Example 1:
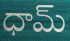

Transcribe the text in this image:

ధామ్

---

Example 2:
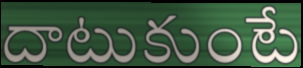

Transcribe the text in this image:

దాటుకుంటే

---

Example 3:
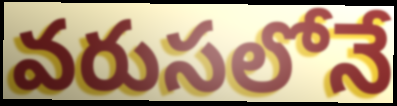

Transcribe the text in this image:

వరుసలోనే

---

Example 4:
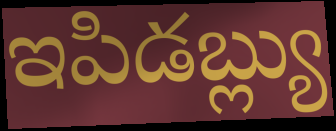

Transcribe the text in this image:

ఇపిడబ్ల్యు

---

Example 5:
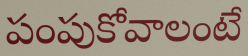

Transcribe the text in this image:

పంపుకోవాలంటే